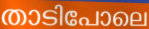
താടിപോലെ